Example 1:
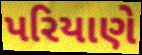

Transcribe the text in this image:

પરિયાણે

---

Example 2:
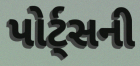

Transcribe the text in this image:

પોર્ટ્સની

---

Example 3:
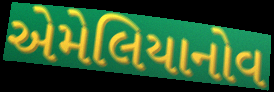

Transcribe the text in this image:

એમેલિયાનોવ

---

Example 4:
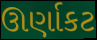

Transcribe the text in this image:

ઊર્ણાકટ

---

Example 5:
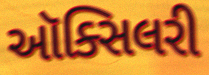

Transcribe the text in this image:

ઑક્સિલરી